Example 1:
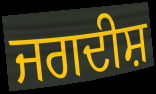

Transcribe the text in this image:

ਜਗਦੀਸ਼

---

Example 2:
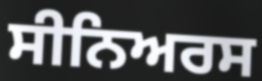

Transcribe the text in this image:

ਸੀਨਿਅਰਸ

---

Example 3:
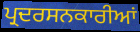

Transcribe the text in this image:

ਪ੍ਰਦਰਸਨਕਾਰੀਆਂ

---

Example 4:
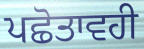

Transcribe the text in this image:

ਪਛੋਤਾਵਹੀ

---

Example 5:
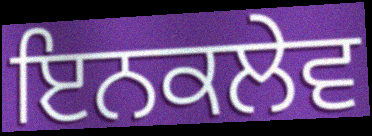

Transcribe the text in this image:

ਇਨਕਲੇਵ